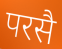
परसै